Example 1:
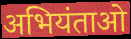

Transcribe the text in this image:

अभियंताओ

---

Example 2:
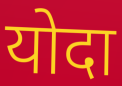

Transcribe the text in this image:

योदा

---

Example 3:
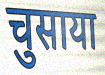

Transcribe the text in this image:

चुसाया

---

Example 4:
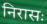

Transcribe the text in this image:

निरासः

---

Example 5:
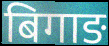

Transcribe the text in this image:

बिगाङ